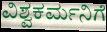
ವಿಶ್ವಕರ್ಮನಿಗೆ